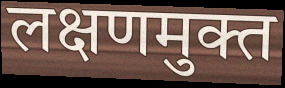
लक्षणमुक्त